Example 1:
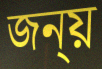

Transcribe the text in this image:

জন্য়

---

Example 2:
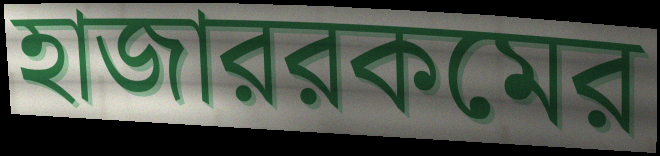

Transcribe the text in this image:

হাজাররকমের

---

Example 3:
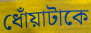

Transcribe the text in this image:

ধোঁয়াটাকে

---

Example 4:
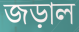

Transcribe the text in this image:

জড়াল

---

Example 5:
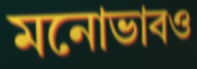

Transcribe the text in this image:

মনোভাবও